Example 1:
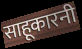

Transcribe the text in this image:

साहूकारनी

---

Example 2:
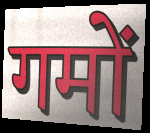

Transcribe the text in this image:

गमों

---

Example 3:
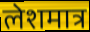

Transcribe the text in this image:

लेशमात्र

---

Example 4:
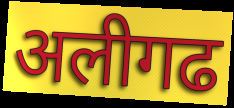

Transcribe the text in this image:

अलीगढ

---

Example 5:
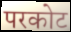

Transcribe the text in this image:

परकोट